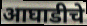
आघाडीचे